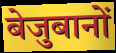
बेजुबानों